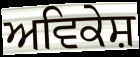
ਅਵਿਕੇਸ਼